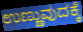
ಉಣ್ಣುವುದಕ್ಕೆ